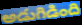
అడుగిడింది